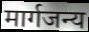
मार्गजन्य